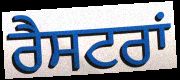
ਰੈਸਟਰਾਂ